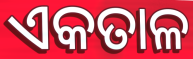
ଏକତାଳ